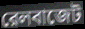
রেলবাজেট